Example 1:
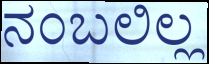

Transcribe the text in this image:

ನಂಬಲಿಲ್ಲ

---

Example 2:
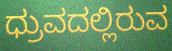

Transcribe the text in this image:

ಧ್ರುವದಲ್ಲಿರುವ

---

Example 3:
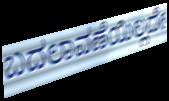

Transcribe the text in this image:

ಬದಲಾವಣೆಯಿಲ್ಲದೇ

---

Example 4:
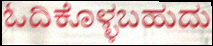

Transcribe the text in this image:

ಓದಿಕೊಳ್ಳಬಹುದು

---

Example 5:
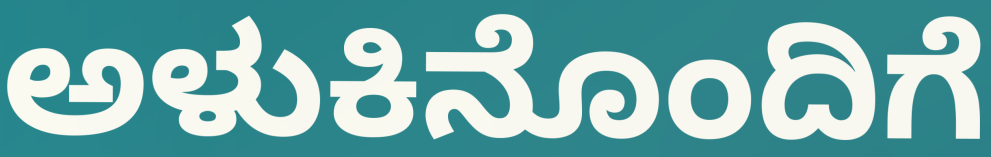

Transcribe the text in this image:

ಅಳುಕಿನೊಂದಿಗೆ